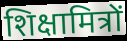
शिक्षामित्रों